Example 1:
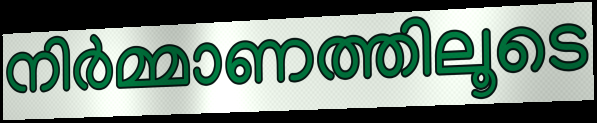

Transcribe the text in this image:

നിർമ്മാണത്തിലൂടെ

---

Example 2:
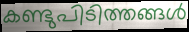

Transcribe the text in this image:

കണ്ടുപിടിത്തങ്ങൾ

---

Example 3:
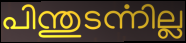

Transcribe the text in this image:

പിന്തുടൎന്നില്ല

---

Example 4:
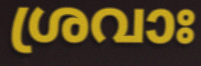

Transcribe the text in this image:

ശ്രവാഃ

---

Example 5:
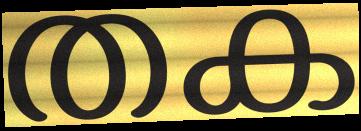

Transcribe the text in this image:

തക